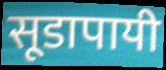
सूडापायी